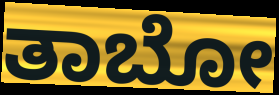
ತಾಬೋ